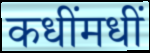
कधींमधीं